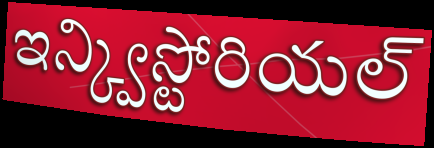
ఇన్క్విస్టోరియల్